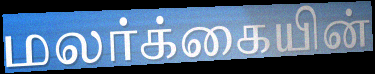
மலர்க்கையின்